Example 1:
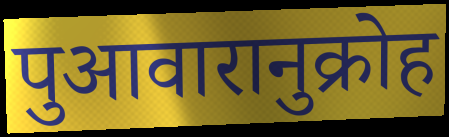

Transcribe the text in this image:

पुआवारानुक्रोह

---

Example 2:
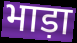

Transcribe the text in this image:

भाड़ा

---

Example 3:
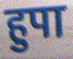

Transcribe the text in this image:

हुपा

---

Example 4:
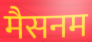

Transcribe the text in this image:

मैसनम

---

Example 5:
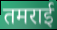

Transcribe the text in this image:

तमराई